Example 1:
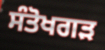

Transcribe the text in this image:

ਸੰਤੋਖਗੜ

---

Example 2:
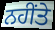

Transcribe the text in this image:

ਨਹੀਂਤੇ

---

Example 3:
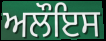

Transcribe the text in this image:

ਅਲੌਇਸ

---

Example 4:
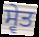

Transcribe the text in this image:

ਸ੍ਵੇਤ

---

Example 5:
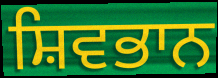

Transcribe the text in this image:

ਸ਼ਿਵਭਾਨ